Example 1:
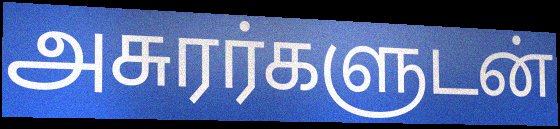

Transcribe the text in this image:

அசுரர்களுடன்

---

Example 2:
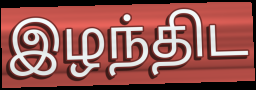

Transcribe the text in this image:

இழந்திட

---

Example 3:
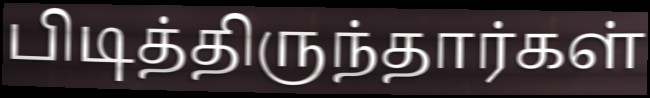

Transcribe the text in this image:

பிடித்திருந்தார்கள்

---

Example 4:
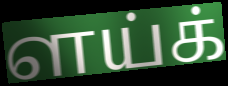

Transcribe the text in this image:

ளய்க்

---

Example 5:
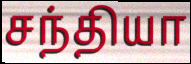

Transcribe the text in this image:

சந்தியா